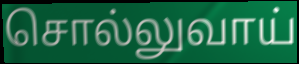
சொல்லுவாய்